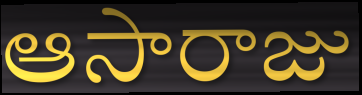
ఆసారాజు